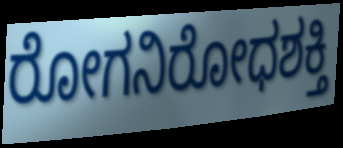
ರೋಗನಿರೋಧಶಕ್ತಿ